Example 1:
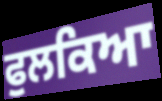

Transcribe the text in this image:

ਫੁਲਕਿਆ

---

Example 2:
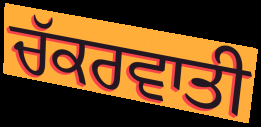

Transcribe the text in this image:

ਚੱਕਰਵਾਤੀ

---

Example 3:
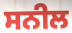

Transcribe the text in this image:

ਸਨੀਲ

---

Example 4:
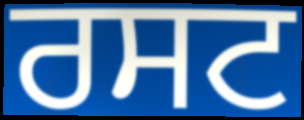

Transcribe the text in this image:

ਰਸਟ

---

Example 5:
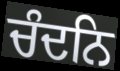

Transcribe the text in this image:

ਚੰਦਨਿ